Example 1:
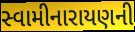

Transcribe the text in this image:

સ્વામીનારાયણની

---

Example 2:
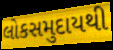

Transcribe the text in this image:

લોકસમુદાયથી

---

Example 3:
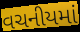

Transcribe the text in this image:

વચનીયમાં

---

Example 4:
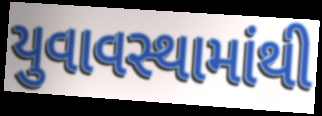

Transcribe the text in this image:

યુવાવસ્થામાંથી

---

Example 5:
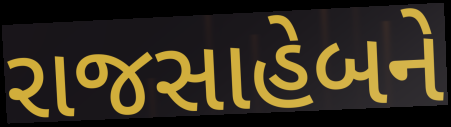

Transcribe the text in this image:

રાજસાહેબને